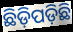
ଛିଡ଼ିପଡ଼ିଛି